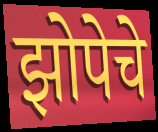
झोपेचे